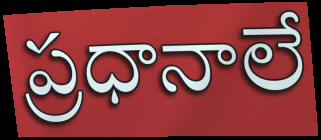
ప్రధానాలే